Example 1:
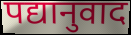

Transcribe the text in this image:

पद्यानुवाद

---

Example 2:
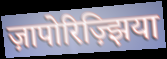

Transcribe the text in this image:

ज़ापोरिज़्झिया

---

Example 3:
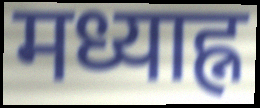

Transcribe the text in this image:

मध्याह्न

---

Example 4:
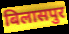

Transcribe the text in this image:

बिलासपुर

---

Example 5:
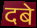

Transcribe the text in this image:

दबे